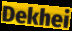
Dekhei